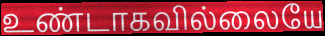
உண்டாகவில்லையே